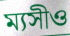
ম্যসীও